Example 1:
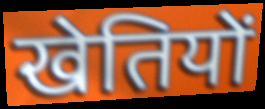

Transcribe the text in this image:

खेतियों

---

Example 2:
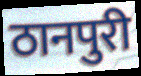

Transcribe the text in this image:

ठानपुरी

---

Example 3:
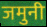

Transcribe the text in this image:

जमुनी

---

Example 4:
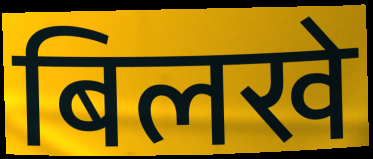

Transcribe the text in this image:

बिलखे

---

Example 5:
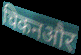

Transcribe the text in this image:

चिकनऔर